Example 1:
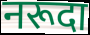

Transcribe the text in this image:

नरूदा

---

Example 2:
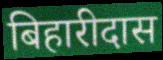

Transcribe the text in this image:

बिहारीदास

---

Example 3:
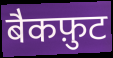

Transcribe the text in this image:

बैकफ़ुट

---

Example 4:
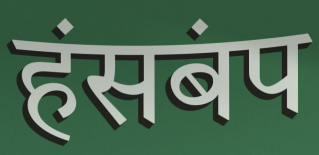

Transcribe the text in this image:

हंसबंप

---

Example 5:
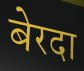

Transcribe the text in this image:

बेरदा